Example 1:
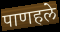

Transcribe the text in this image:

पाणहले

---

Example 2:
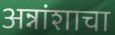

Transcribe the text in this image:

अन्नांशाचा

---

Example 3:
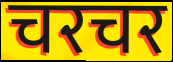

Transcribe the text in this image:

चरचर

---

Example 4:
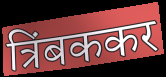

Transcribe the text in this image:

त्रिंबककर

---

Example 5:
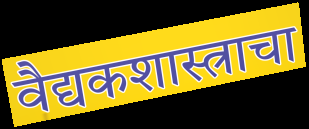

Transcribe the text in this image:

वैद्यकशास्त्राचा